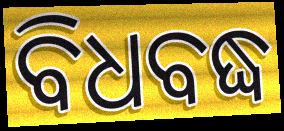
ବିଧବଦ୍ଧ